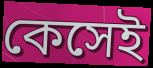
কেসেই